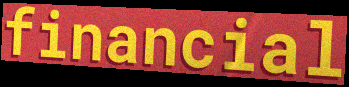
financial